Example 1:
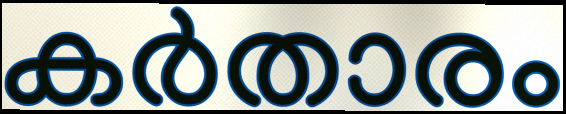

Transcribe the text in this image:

കർതാരം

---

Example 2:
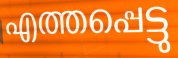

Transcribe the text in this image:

എത്തപ്പെട്ടു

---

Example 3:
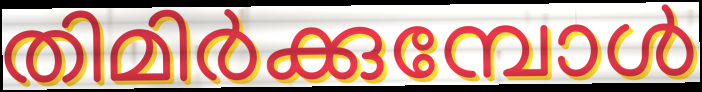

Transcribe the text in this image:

തിമിർക്കുമ്പോൾ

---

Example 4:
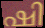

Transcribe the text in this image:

ഷി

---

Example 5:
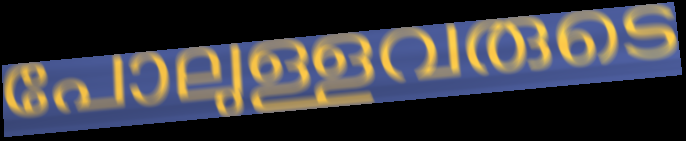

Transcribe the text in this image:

പോലുള്ളവരുടെ